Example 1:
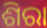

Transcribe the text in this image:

ଶିରା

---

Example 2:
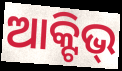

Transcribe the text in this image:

ଆକ୍ଟିଭ୍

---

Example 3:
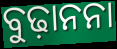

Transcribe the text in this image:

ବୁଢ଼ାନନା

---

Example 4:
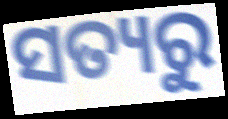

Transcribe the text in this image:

ସତ୍ୟରୁ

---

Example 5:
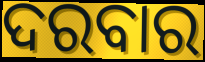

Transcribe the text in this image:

ଦରବାର